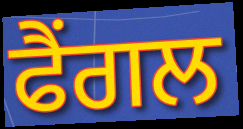
ਫੈਂਗਲ